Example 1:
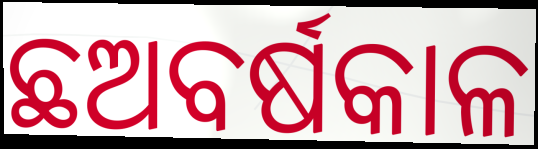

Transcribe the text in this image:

ଛଅବର୍ଷକାଳ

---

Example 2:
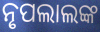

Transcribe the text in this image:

ନୃପଲାଲଙ୍କ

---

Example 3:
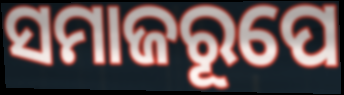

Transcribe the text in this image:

ସମାଜରୂପେ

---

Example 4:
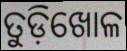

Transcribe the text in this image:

ତୁଡ଼ିଖୋଳ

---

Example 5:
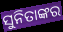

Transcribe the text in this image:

ସୁନିତାଙ୍କର